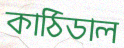
কাঠিডাল